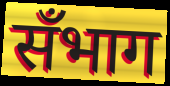
सँभाग